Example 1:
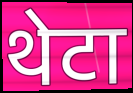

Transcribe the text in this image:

थेटा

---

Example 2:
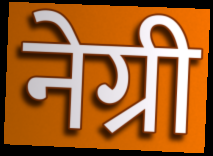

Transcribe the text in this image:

नेग्री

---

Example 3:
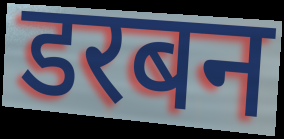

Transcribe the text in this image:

डरबन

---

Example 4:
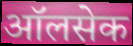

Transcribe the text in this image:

ऑलसेक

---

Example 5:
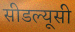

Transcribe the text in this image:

सीडल्यूसी